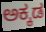
ಅಕ್ಕಡ